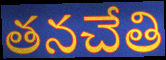
తనచేతి